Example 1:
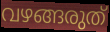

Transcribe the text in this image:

വഴങ്ങരുത്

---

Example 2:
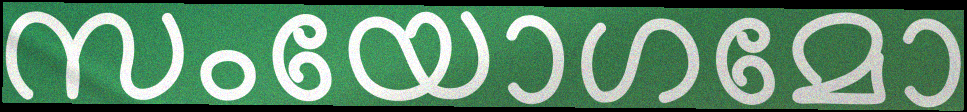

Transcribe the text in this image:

സംയോഗമോ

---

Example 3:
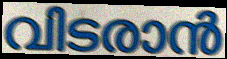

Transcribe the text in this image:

വിടരാൻ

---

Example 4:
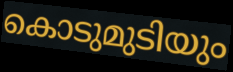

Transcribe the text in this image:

കൊടുമുടിയും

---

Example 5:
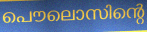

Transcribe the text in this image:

പൌലൊസിന്റെ